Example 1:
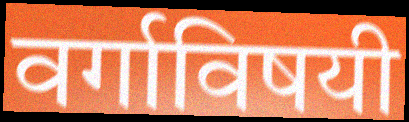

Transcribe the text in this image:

वर्गाविषयी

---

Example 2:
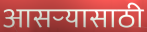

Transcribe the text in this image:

आसऱ्यासाठी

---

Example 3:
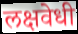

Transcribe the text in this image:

लक्षवेधी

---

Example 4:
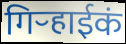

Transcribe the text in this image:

गिऱ्हाईकं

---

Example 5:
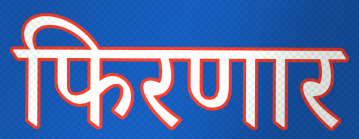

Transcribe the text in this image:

फिरणार